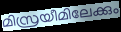
മിസ്രയീമിലേക്കും